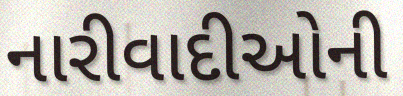
નારીવાદીઓની